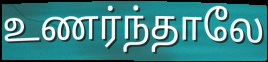
உணர்ந்தாலே